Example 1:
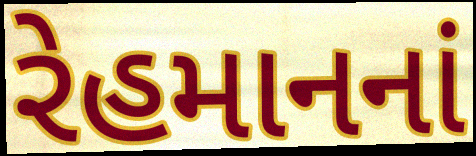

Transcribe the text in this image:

રેહમાનનાં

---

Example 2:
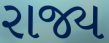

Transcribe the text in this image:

રાજ્ય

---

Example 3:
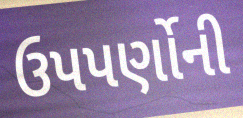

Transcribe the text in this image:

ઉપપર્ણોની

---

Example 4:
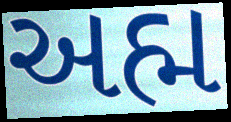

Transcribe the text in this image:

અહ્મ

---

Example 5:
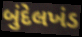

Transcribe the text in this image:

બુંદેલખંડ